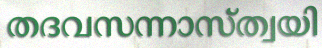
തദവസന്നാസ്ത്വയി